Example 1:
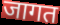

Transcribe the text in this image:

जागत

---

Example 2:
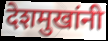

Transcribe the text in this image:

देशमुखांनी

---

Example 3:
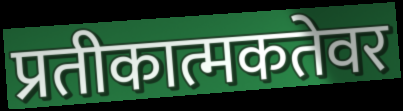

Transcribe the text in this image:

प्रतीकात्मकतेवर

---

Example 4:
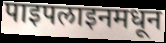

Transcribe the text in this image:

पाइपलाइनमधून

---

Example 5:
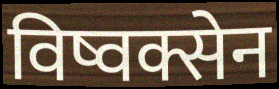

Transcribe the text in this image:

विष्वक्सेन